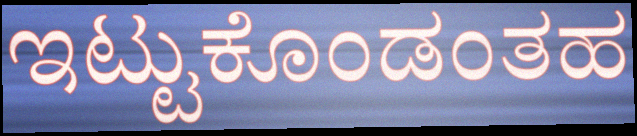
ಇಟ್ಟುಕೊಂಡಂತಹ